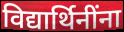
विद्यार्थिनींना